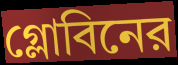
গ্লোবিনের